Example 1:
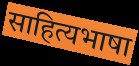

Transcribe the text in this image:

साहित्यभाषा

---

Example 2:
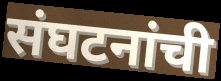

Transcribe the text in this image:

संघटनांची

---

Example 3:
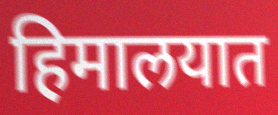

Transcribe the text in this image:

हिमालयात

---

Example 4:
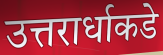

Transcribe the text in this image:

उत्तरार्धाकडे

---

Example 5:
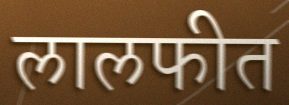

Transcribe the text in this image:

लालफीत